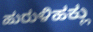
ಹುರುಳಿಹಕ್ಲು